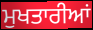
ਮੁਖਤਾਰੀਆਂ